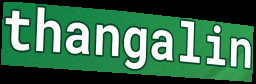
thangalin